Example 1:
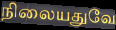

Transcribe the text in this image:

நிலையதுவே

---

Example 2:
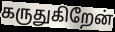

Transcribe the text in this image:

கருதுகிறேன்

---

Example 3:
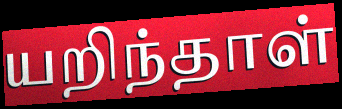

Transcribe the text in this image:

யறிந்தாள்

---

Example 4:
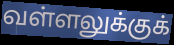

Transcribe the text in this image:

வள்ளலுக்குக்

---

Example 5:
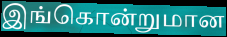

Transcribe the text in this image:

இங்கொன்றுமான